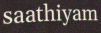
saathiyam